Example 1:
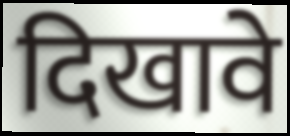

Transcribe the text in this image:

दिखावे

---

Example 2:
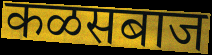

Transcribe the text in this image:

कळसबाज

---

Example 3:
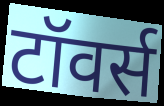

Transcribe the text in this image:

टॉवर्स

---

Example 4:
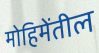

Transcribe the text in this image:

मोहिमेंतील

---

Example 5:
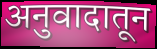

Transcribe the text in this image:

अनुवादातून